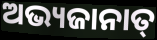
ଅଭ୍ୟଜାନାତ୍